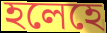
হলেহে